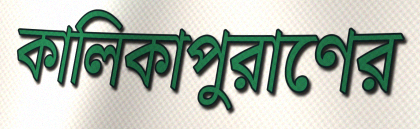
কালিকাপুরাণের